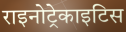
राइनोट्रेकाइटिस